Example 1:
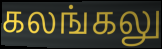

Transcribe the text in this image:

கலங்கலு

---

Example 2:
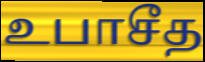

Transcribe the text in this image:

உபாசீத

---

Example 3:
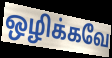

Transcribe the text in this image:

ஒழிக்கவே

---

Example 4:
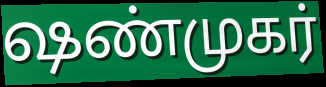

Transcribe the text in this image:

ஷண்முகர்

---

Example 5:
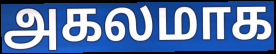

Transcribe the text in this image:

அகலமாக